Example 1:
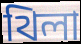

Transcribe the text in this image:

থিলা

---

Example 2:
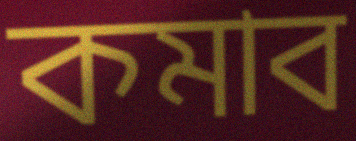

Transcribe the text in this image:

কমাব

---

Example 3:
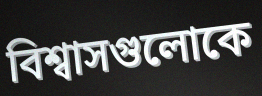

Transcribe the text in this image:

বিশ্বাসগুলোকে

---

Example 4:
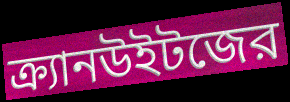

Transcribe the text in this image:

ক্র্যানউইটজের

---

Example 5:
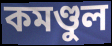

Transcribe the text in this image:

কমণ্ডুল